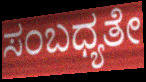
ಸಂಬಧ್ಯತೇ